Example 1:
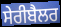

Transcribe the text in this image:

ਸੇਰੀਬੈਲਰ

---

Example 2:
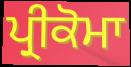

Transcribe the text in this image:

ਪ੍ਰੀਕੋਮਾ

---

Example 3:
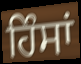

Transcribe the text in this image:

ਹਿੰਸਾਂ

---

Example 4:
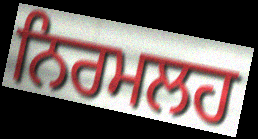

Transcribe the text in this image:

ਨਿਰਮਲਹ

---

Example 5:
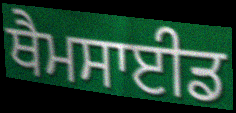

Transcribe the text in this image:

ਥੈਮਸਾਈਡ